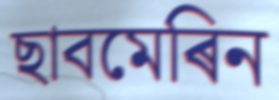
ছাবমেৰিন